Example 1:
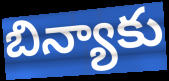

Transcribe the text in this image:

బిన్యాకు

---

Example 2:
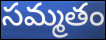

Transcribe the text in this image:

సమ్మతం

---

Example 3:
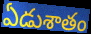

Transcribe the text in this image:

ఏడుశాతం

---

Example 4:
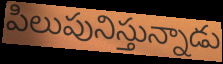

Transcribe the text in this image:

పిలుపునిస్తున్నాడు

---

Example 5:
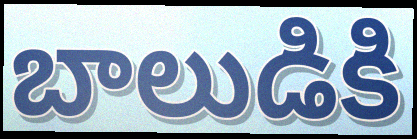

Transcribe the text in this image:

బాలుడికి